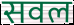
सवल